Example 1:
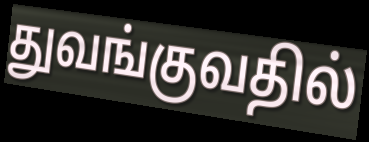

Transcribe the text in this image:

துவங்குவதில்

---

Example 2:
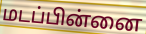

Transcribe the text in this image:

மடப்பின்னை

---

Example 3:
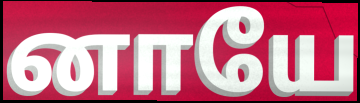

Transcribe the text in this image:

னாயே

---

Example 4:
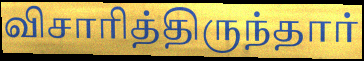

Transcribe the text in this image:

விசாரித்திருந்தார்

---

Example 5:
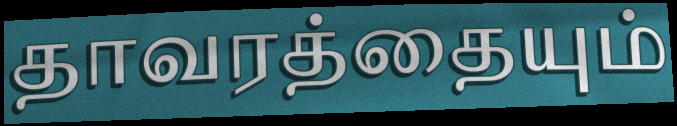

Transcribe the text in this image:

தாவரத்தையும்